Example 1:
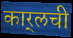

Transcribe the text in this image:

कार्लची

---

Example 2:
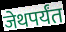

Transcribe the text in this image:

जेथपर्यंत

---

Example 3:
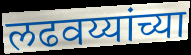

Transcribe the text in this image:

लढवय्यांच्या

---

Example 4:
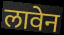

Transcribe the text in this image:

लावेन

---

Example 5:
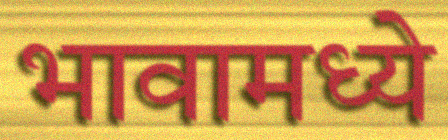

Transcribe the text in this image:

भावामध्ये